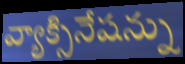
వ్యాక్సినేషన్ను